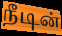
நீடின்